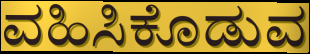
ವಹಿಸಿಕೊಡುವ